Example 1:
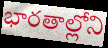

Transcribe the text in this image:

భారతాల్లోని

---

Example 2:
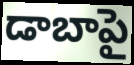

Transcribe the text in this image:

డాబాపై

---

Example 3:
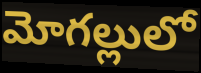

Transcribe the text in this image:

మోగల్లులో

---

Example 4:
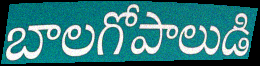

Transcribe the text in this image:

బాలగోపాలుడి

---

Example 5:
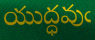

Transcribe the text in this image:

యుద్ధవుఁ